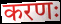
करणः